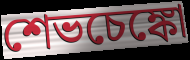
শেভচেঙ্কো